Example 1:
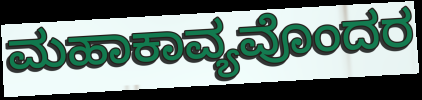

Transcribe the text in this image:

ಮಹಾಕಾವ್ಯವೊಂದರ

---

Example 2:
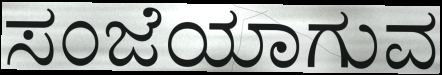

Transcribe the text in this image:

ಸಂಜೆಯಾಗುವ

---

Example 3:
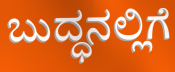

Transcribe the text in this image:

ಬುದ್ಧನಲ್ಲಿಗೆ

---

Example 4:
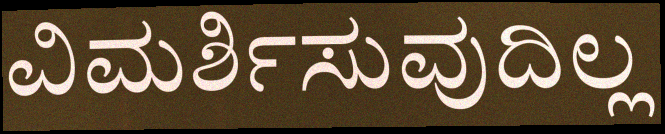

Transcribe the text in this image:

ವಿಮರ್ಶಿಸುವುದಿಲ್ಲ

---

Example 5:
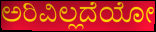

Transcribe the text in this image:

ಅರಿವಿಲ್ಲದೆಯೋ